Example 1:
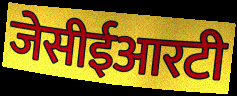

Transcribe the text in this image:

जेसीईआरटी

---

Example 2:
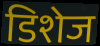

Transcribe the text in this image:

डिशेज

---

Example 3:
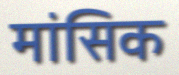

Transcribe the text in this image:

मांसिक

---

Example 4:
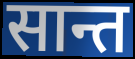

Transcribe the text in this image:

सान्त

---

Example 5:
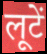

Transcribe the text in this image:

लूटें